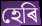
হেৰি